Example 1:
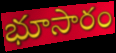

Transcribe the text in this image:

భూసారం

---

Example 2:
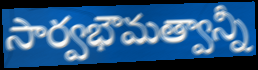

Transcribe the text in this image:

సార్వభౌమత్వాన్నీ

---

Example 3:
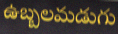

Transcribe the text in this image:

ఉబ్బలమడుగు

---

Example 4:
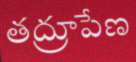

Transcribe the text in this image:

తద్రూపేణ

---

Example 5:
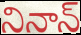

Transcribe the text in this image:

నినాన్